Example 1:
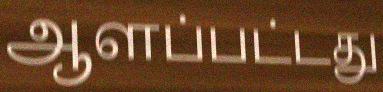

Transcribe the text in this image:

ஆளப்பட்டது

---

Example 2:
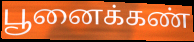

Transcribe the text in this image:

பூனைக்கண்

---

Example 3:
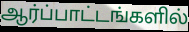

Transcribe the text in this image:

ஆர்ப்பாட்டங்களில்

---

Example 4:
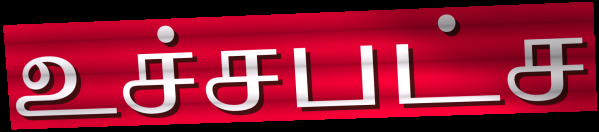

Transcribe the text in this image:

உச்சபட்ச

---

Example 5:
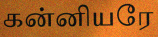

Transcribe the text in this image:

கன்னியரே